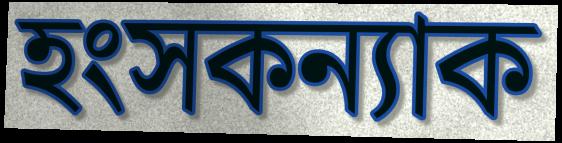
হংসকন্যাক